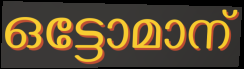
ഒട്ടോമാന്